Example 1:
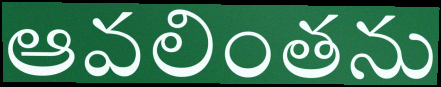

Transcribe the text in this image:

ఆవలింతను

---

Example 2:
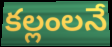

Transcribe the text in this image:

కల్లంలనే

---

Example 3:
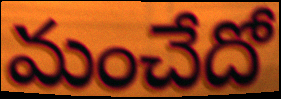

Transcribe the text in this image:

మంచేదో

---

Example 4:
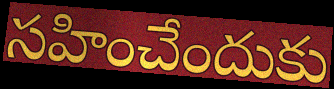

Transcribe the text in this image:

సహించేందుకు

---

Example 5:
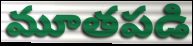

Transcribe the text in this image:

మూతపడి